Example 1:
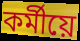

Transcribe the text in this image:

কৰ্মীয়ে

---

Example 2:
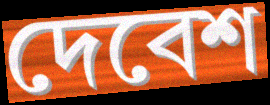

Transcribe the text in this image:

দেবেশ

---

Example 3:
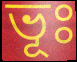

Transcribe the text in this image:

ভূঃ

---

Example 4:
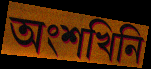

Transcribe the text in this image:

অংশখিনি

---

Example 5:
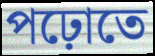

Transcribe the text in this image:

পঢ়োতে